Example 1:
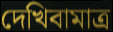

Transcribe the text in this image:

দেখিবামাত্র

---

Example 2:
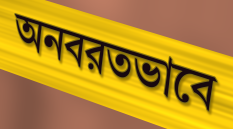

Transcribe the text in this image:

অনবরতভাবে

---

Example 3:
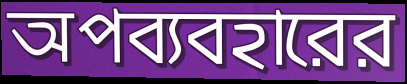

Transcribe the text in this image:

অপব্যবহারের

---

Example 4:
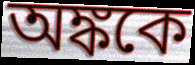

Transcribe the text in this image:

অঙ্ককে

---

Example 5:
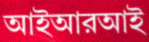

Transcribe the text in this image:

আইআরআই